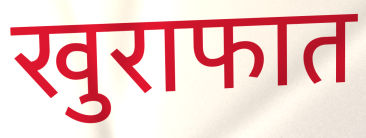
खुराफात